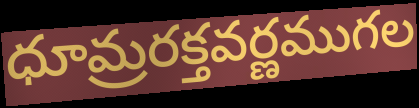
ధూమ్రరక్తవర్ణముగల